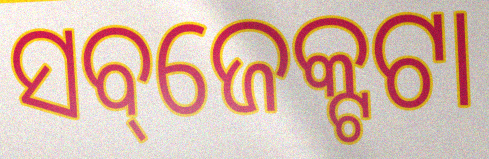
ସବ୍‌ଜେକ୍ଟଟା